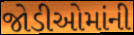
જોડીઓમાંની